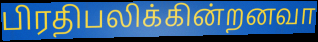
பிரதிபலிக்கின்றனவா